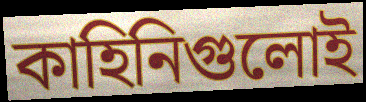
কাহিনিগুলোই